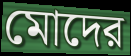
মোদের